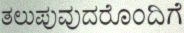
ತಲುಪುವುದರೊಂದಿಗೆ